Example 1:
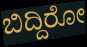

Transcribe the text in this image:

ಬಿದ್ದಿರೋ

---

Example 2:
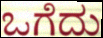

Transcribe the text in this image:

ಒಗೆದು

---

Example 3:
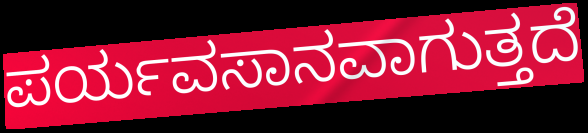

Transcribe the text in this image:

ಪರ್ಯವಸಾನವಾಗುತ್ತದೆ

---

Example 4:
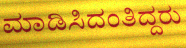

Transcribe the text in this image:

ಮಾಡಿಸಿದಂತಿದ್ದರು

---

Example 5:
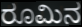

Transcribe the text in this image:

ರೂಮಿನ